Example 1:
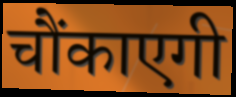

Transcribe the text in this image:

चौंकाएगी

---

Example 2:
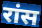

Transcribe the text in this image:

रांस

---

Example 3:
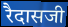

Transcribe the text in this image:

रैदासजी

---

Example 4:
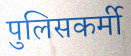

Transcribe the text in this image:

पुलिसकर्मी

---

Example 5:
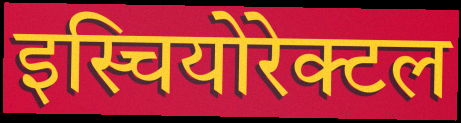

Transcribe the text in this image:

इस्चियोरेक्टल